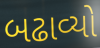
બઢાવ્યો